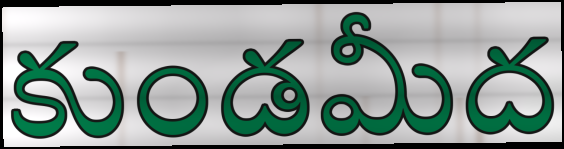
కుండమీద